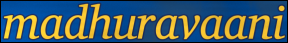
madhuravaani